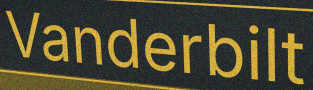
Vanderbilt